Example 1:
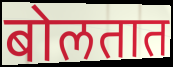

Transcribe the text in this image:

बोलतात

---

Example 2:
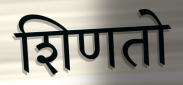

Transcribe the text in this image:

शिणतो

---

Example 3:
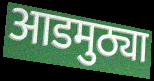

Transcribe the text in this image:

आडमुठ्या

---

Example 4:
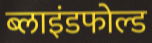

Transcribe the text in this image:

ब्लाइंडफोल्ड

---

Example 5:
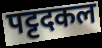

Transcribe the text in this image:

पट्टदकल